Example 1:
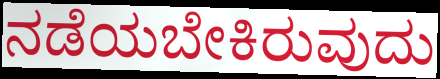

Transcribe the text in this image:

ನಡೆಯಬೇಕಿರುವುದು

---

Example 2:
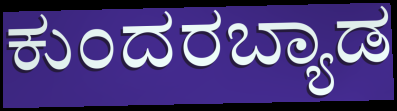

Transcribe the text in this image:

ಕುಂದರಬ್ಯಾಡ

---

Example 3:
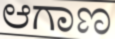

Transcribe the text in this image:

ಆಗಾಣ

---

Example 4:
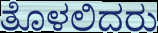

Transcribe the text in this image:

ತೊಳಲಿದರು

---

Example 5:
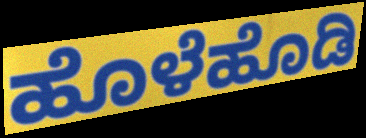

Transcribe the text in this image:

ಹೊಳೆಹೊಡಿ